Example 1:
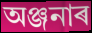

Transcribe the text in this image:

অঞ্জনাৰ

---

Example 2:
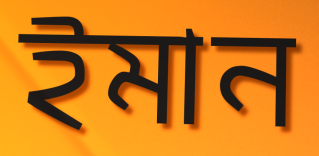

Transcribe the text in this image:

ইমান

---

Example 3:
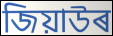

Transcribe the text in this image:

জিয়াউৰ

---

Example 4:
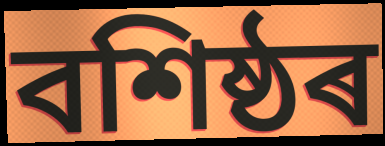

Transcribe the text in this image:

বশিষ্ঠৰ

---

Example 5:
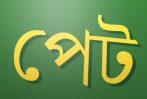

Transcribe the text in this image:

পেট